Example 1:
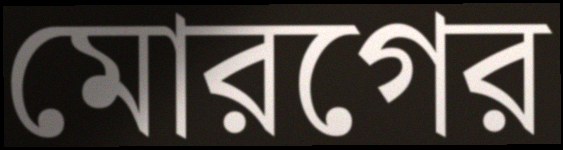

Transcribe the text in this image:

মোরগের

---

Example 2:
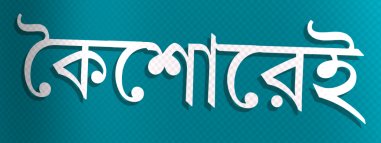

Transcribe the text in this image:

কৈশোরেই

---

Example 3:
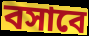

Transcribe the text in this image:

বসাবে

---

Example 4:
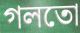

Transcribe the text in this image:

গলতো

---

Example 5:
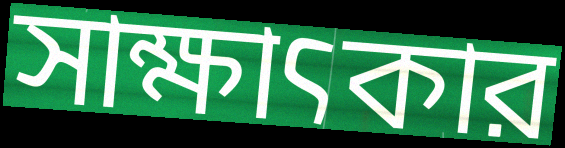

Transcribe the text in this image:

সাক্ষাৎকার